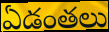
ఏడంతలు